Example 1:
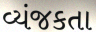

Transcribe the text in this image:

વ્યંજકતા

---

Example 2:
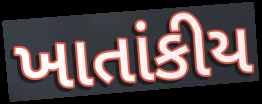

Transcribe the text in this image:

ખાતાંકીય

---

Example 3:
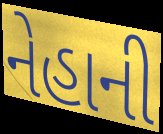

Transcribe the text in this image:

નેહાની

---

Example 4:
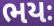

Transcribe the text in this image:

ભયઃ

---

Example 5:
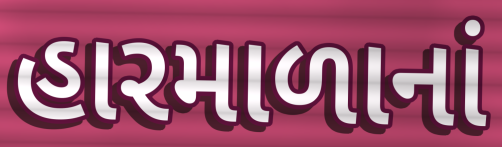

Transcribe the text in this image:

હારમાળાનાં